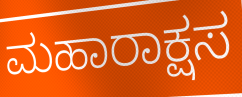
ಮಹಾರಾಕ್ಷಸ